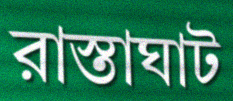
রাস্তাঘাট